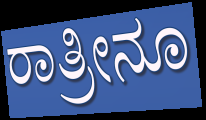
ರಾತ್ರೀನೂ